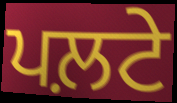
ਪਲ਼ਟੇ